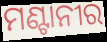
ମଣ୍ଟାନୀର